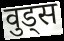
वुड्स